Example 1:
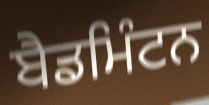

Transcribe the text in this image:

ਬੈਡਮਿੰਟਨ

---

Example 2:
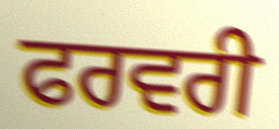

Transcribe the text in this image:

ਫਰਵਰੀ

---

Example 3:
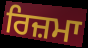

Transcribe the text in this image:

ਰਿਜ਼ਮਾ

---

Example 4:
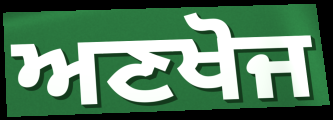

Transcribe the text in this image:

ਅਣਖੋਜ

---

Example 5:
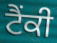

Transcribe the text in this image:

ਟੈਂਕੀ